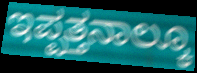
ಇಪ್ಪತ್ತನಾಲ್ಕೂ